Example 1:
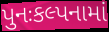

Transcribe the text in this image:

પુનઃકલ્પનામાં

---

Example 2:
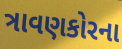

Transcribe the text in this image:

ત્રાવણકોરના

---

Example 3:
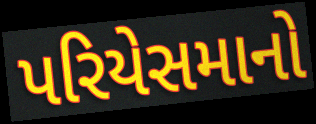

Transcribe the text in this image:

પરિયેસમાનો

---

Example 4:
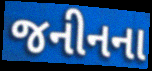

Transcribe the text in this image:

જનીનના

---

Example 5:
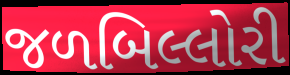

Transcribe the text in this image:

જળબિલ્લોરી